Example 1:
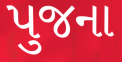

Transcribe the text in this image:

પુજના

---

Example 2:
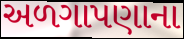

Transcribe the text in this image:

અળગાપણાના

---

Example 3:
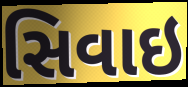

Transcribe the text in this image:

સિવાઇ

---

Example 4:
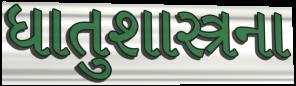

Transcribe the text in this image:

ધાતુશાસ્ત્રના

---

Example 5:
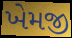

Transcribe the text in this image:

ખેમજી